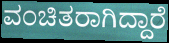
ವಂಚಿತರಾಗಿದ್ದಾರೆ